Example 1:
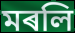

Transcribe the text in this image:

মৰলি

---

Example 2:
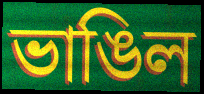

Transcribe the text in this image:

ভাঙিল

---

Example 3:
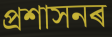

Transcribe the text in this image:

প্ৰশাসনৰ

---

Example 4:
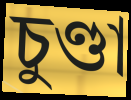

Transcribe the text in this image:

চুণ্ডা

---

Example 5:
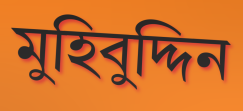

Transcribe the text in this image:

মুহিবুদ্দিন